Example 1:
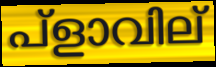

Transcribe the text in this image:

പ്ളാവില്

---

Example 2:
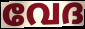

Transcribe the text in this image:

വേദ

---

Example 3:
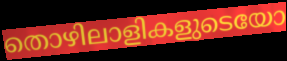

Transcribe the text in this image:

തൊഴിലാളികളുടെയോ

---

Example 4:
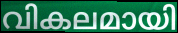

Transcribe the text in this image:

വികലമായി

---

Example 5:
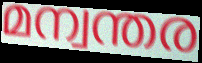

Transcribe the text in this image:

മന്വന്തര